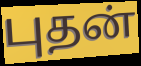
புதன்